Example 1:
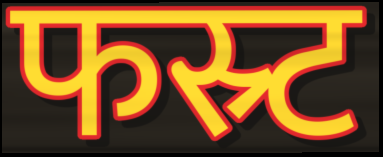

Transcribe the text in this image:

फस्र्ट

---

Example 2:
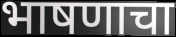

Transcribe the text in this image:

भाषणाचा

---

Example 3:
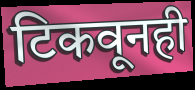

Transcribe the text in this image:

टिकवूनही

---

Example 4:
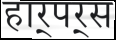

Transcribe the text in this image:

हार्पर्स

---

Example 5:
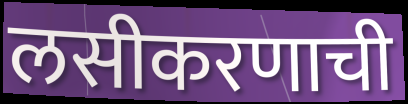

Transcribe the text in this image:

लसीकरणाची